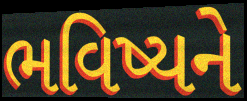
ભવિષ્યને